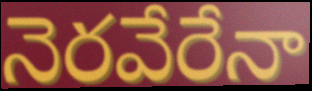
నెరవేరేనా